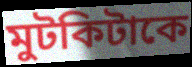
মুটকিটাকে